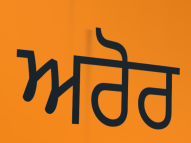
ਅਰੋਰ